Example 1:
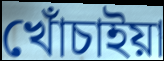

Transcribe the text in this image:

খোঁচাইয়া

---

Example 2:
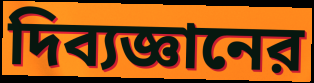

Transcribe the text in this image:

দিব্যজ্ঞানের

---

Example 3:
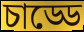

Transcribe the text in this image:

চাড্ডে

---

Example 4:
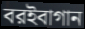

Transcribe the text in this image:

বরইবাগান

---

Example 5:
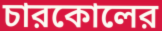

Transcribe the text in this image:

চারকোলের